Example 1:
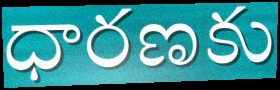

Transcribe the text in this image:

ధారణకు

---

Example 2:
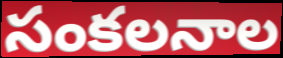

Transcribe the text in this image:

సంకలనాల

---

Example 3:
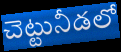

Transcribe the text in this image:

చెట్టునీడలో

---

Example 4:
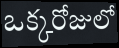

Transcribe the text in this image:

ఒక్కరోజులో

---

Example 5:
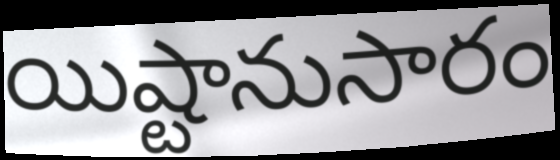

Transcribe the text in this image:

యిష్టానుసారం